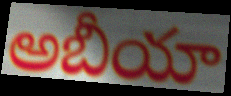
అబీయా